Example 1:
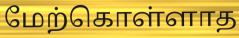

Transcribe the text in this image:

மேற்கொள்ளாத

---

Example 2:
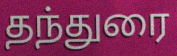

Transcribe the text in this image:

தந்துரை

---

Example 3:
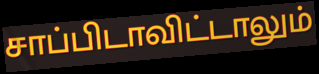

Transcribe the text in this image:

சாப்பிடாவிட்டாலும்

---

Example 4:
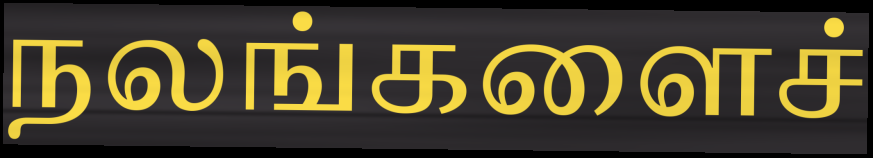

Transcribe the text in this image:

நலங்களைச்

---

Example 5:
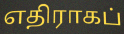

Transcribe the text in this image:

எதிராகப்